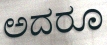
ಅದರೂ